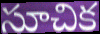
సూచిక